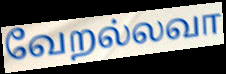
வேறல்லவா